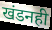
खंडनही